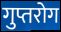
गुप्तरोग